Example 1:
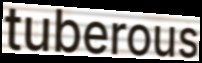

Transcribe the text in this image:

tuberous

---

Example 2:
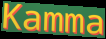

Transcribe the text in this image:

Kamma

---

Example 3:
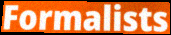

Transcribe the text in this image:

Formalists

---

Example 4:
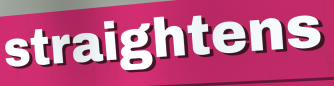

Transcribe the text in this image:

straightens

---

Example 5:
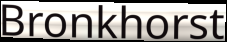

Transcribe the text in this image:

Bronkhorst